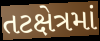
તટક્ષેત્રમાં